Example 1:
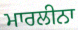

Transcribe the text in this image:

ਮਾਰਲੀਨਾ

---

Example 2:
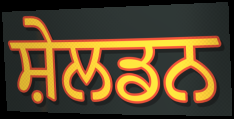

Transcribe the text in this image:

ਸ਼ੇਲਡਨ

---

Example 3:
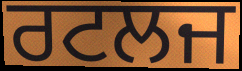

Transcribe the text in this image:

ਰਟਲਜ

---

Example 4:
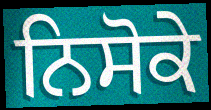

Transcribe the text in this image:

ਨਿਸੋਕੇ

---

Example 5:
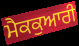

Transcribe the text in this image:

ਮੈਕਕੁਆਰੀ